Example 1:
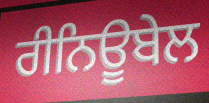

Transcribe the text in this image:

ਰੀਨਿਊਬੇਲ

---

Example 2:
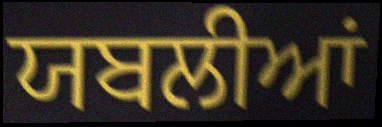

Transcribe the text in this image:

ਯਬਲੀਆਂ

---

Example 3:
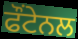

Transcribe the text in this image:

ਫੌਂਟੇਨਲ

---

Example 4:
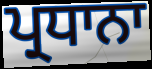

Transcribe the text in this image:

ਪ੍ਰਧਾਨਾ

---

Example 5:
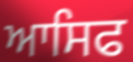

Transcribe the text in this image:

ਆਸਿਫ